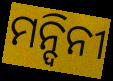
ମନ୍ଦିନୀ